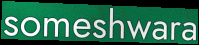
someshwara